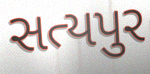
સત્યપુર